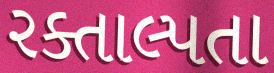
રક્તાલ્પતા